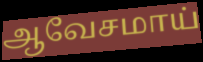
ஆவேசமாய்